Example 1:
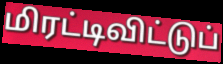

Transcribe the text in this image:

மிரட்டிவிட்டுப்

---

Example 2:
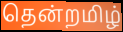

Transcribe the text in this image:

தென்றமிழ்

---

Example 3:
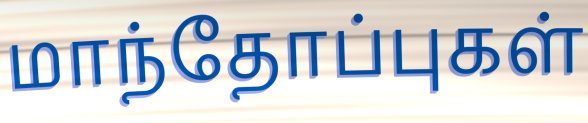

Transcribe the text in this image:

மாந்தோப்புகள்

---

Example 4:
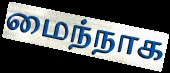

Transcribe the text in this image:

மைந்நாக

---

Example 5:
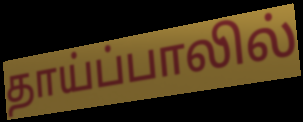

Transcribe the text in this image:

தாய்ப்பாலில்